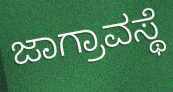
ಜಾಗ್ರಾವಸ್ಥೆ